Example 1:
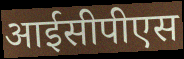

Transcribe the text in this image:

आईसीपीएस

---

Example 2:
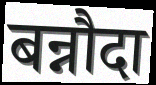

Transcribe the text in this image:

बन्नौदा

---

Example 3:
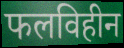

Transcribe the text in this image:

फलविहीन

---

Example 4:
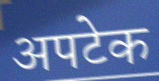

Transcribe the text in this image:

अपटेक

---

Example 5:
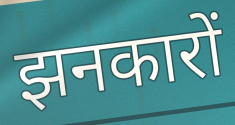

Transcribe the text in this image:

झनकारों